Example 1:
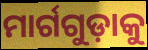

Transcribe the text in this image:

ମାର୍ଗଗୁଡ଼ାକୁ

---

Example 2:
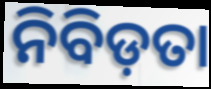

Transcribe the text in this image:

ନିବିଡ଼ତା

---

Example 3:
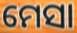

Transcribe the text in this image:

ମେସା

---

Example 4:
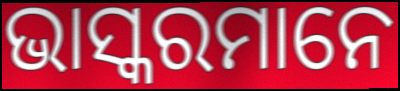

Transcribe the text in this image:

ଭାସ୍କରମାନେ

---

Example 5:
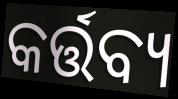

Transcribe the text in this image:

କର୍ତ୍ତବ୍ୟ